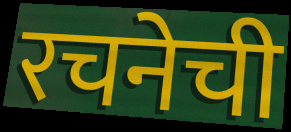
रचनेची